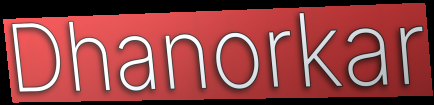
Dhanorkar